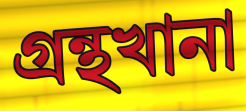
গ্রন্থখানা